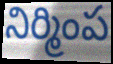
నిర్మింప